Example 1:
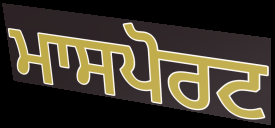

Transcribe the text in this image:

ਮਾਸਪੋਰਟ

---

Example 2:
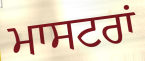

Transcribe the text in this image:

ਮਾਸਟਰਾਂ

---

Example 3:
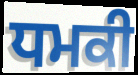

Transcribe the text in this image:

ਧਮਕੀ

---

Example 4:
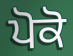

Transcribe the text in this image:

ਪੋਕੋ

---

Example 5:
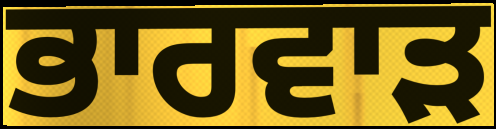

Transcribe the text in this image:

ਭਾਰਵਾੜ